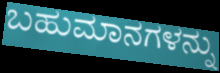
ಬಹುಮಾನಗಳನ್ನು